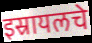
इस्रायलचे